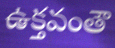
ఉక్తవంతౌ